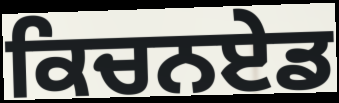
ਕਿਚਨਏਡ